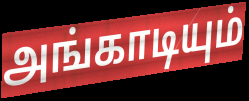
அங்காடியும்